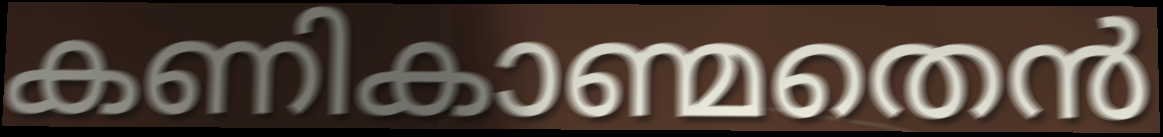
കണികാണ്മതെൻ